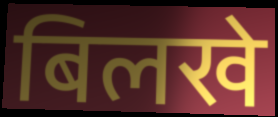
बिलखे